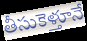
తీసుకెళ్తూనే